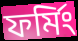
ফর্মিং